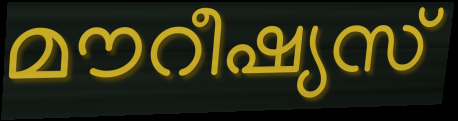
മൗറീഷ്യസ്